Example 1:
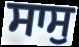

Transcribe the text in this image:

ਸਾਸੁ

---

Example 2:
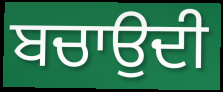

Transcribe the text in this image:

ਬਚਾਉਦੀ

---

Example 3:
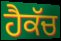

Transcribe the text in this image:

ਹੈਕੱਚ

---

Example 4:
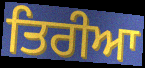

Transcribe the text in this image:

ਤਿਰੀਆ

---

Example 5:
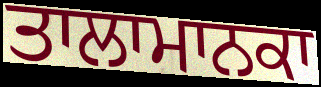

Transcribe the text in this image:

ਤਾਲਾਮਾਨਕਾ